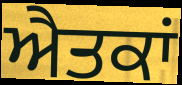
ਐਤਕਾਂ